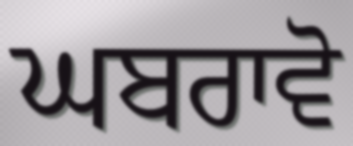
ਘਬਰਾਵੋ